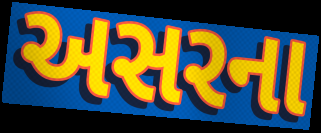
અસરના